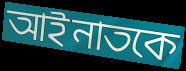
আইনাতকে